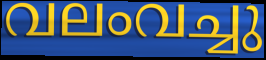
വലംവച്ചു